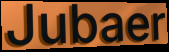
Jubaer